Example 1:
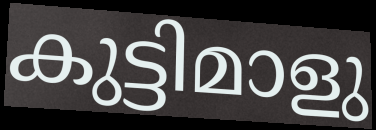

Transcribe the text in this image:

കുട്ടിമാളു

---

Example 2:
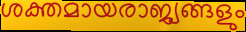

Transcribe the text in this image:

ശക്തമായരാജ്യങ്ങളും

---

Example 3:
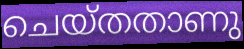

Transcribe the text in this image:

ചെയ്തതാണു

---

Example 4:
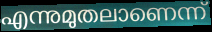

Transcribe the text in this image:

എന്നുമുതലാണെന്ന്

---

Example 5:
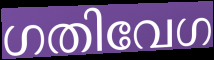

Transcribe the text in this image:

ഗതിവേഗ